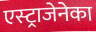
एस्‍ट्राजेनेका